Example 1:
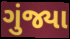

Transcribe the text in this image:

ગુંજ્યા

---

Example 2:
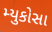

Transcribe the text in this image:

મ્યુકોસા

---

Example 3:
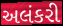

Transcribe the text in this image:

અલંકરી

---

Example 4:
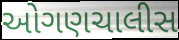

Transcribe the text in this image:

ઓગણચાલીસ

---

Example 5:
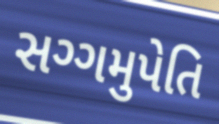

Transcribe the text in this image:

સગ્ગમુપેતિ